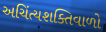
અચિંત્યશક્તિવાળો